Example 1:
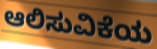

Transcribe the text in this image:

ಆಲಿಸುವಿಕೆಯ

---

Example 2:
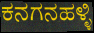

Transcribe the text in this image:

ಕನಗನಹಳ್ಳಿ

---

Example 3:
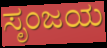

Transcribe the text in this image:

ಸೃಂಜಯ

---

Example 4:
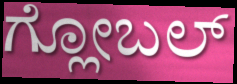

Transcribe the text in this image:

ಗ್ಲೋಬಲ್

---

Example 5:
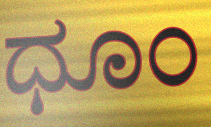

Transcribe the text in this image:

ಧೂಂ